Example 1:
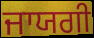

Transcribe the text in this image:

ਜਾਯਗੀ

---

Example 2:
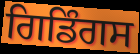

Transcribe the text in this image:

ਗਿਡਿੰਗਸ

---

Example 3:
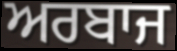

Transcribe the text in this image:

ਅਰਬਾਜ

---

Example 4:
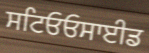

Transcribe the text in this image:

ਸਟਿਓਓਸਾਈਡ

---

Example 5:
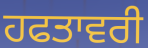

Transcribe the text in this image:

ਹਫਤਾਵਰੀ